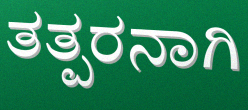
ತತ್ಪರನಾಗಿ